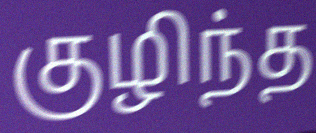
குழிந்த